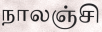
நாலஞ்சி